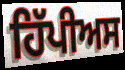
ਹਿੱਪੀਅਸ